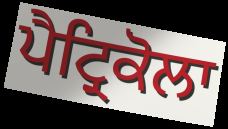
ਪੈਟ੍ਰਿਕੋਲਾ